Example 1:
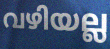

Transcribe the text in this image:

വഴിയല്ല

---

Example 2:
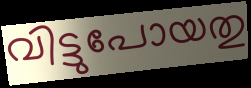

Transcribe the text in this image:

വിട്ടുപോയതു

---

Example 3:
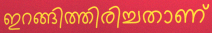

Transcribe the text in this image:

ഇറങ്ങിത്തിരിച്ചതാണ്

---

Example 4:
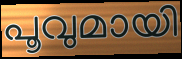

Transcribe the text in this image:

പൂവുമായി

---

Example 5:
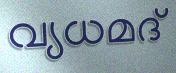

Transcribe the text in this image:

വ്യധമദ്